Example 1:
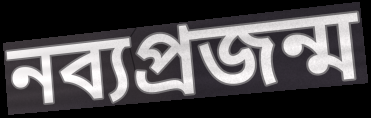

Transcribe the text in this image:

নব্যপ্রজন্ম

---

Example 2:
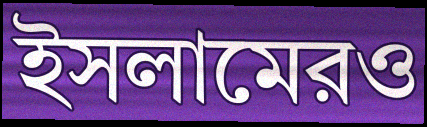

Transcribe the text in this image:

ইসলামেরও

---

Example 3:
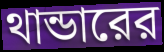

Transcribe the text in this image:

থান্ডারের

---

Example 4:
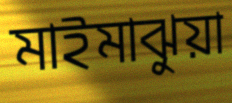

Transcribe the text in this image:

মাইমাঝুয়া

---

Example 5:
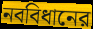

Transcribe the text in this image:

নববিধানের